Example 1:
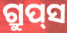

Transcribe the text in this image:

ଗ୍ରୁପ୍‌ସ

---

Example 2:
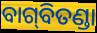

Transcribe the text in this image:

ବାଗ୍‌ବିତଣ୍ଡା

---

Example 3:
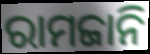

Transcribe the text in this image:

ରାମଜାନି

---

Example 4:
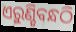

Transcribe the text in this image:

ଏରୁଣ୍ଡିବନ୍ଧଠି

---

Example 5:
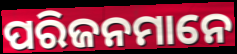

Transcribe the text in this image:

ପରିଜନମାନେ